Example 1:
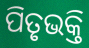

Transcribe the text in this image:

ପିତୃଭକ୍ତି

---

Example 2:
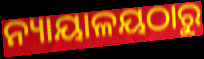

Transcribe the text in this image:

ନ୍ୟାୟାଳୟଠାରୁ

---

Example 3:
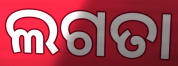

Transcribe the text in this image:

ଲଗତା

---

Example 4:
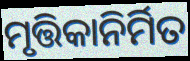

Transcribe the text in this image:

ମୃତ୍ତିକାନିର୍ମିତ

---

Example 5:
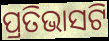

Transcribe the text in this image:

ପ୍ରତିଭାସଟି